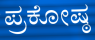
ಪ್ರಕೋಷ್ಠ